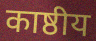
काष्ठीय